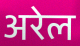
अरेल